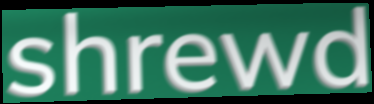
shrewd